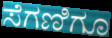
ಸೆಗಣಿಗೂ